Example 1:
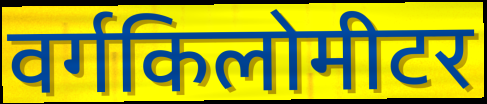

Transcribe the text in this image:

वर्गकिलोमीटर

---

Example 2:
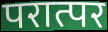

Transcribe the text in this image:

परात्‍पर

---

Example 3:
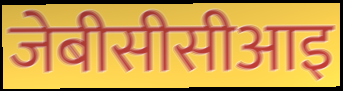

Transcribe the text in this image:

जेबीसीसीआइ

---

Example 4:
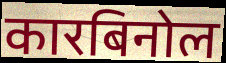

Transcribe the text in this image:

कारबिनोल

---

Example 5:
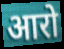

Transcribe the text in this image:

आरो